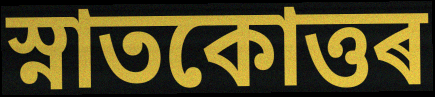
স্নাতকোত্তৰ